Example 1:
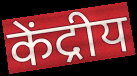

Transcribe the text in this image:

केंद्रीय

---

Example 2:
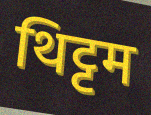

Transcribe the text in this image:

थिट्टम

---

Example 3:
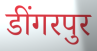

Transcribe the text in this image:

डींगरपुर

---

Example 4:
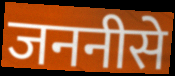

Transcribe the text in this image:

जननीसे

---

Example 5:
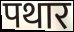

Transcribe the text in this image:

पथार